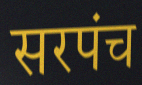
सरपंच